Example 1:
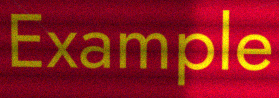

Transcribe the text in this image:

Example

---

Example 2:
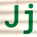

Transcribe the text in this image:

Jj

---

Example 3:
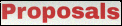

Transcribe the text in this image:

Proposals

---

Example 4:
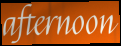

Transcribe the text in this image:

afternoon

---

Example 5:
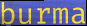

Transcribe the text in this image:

burma